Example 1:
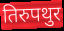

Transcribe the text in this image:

तिरुपथुर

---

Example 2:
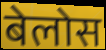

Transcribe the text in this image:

बेलोस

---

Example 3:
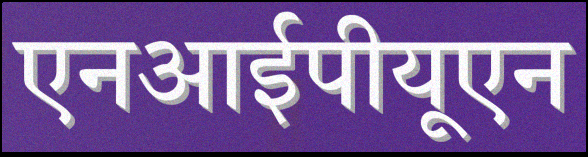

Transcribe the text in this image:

एनआईपीयूएन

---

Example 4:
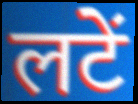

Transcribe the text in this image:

लटें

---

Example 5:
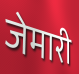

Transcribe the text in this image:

जेमारी